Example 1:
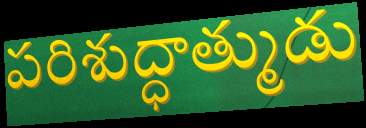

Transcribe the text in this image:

పరిశుద్ధాత్ముడు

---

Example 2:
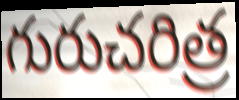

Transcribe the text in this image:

గురుచరిత్ర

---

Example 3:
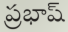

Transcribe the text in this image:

ప్రభాష్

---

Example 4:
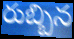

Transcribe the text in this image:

రుబ్బిన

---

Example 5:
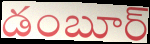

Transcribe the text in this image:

డంబూర్